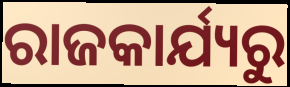
ରାଜକାର୍ଯ୍ୟରୁ